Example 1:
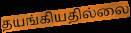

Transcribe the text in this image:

தயங்கியதில்லை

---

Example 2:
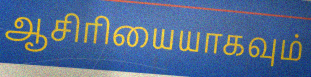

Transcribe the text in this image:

ஆசிரியையாகவும்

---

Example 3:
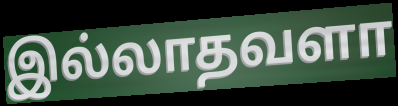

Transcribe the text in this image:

இல்லாதவளா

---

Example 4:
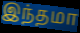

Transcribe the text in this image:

இந்தமா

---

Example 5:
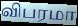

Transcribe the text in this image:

விபரமா